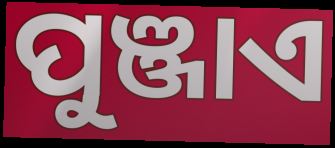
ପୁଞ୍ଜାଏ